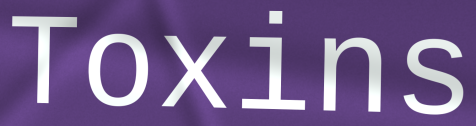
Toxins